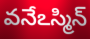
వనేఽస్మిన్